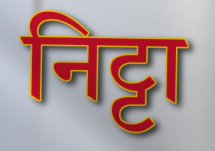
निट्टा